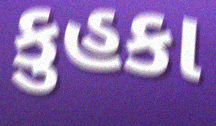
કુહકા